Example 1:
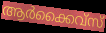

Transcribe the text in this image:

ആർക്കൈവ്സ്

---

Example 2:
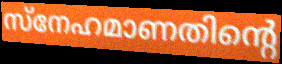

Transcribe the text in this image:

സ്നേഹമാണതിന്റെ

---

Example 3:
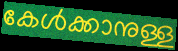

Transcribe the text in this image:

കേൾക്കാനുള്ള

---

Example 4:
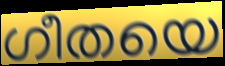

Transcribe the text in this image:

ഗീതയെ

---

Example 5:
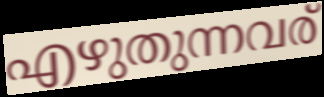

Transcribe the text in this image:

എഴുതുന്നവര്